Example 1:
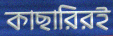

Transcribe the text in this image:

কাছারিরই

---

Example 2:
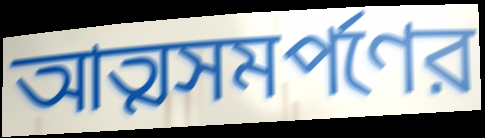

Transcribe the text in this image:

আত্মসমর্পণের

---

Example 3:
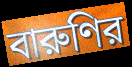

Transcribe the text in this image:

বারুণির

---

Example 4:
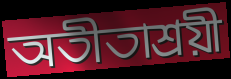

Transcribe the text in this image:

অতীতাশ্রয়ী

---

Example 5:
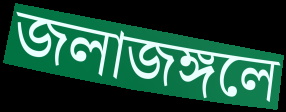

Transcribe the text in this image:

জলাজঙ্গলে